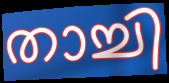
താച്ചി